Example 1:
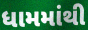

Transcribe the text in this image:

ધામમાંથી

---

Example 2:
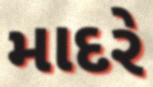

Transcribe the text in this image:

માદરે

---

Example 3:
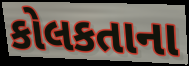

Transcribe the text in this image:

કોલકતાના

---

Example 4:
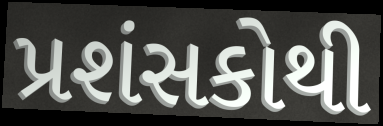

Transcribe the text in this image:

પ્રશંસકોથી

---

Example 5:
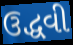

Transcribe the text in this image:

ઉદ્ધવી